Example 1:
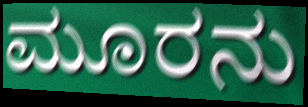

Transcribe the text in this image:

ಮೂರನು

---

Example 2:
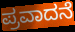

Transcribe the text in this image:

ಪ್ರವಾದನೆ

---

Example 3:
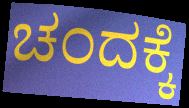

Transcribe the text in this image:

ಚಂದಕ್ಕೆ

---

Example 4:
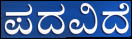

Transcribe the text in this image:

ಪದವಿದೆ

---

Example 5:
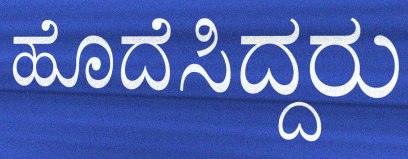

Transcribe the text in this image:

ಹೊದೆಸಿದ್ದರು